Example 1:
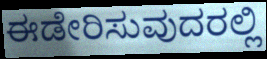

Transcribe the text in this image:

ಈಡೇರಿಸುವುದರಲ್ಲಿ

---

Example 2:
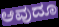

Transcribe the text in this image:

ಆವುದೂ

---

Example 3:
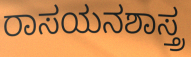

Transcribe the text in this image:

ರಾಸಯನಶಾಸ್ತ್ರ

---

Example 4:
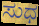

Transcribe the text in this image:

ಸುಧ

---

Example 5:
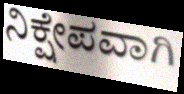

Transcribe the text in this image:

ನಿಕ್ಷೇಪವಾಗಿ